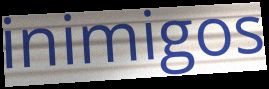
inimigos